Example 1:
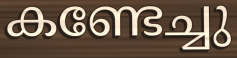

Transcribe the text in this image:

കണ്ടേച്ചു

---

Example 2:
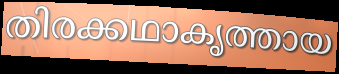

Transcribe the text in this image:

തിരക്കഥാകൃത്തായ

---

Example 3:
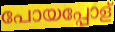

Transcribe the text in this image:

പോയപ്പോള്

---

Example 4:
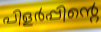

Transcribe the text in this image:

പിളർപ്പിന്റെ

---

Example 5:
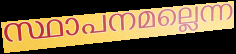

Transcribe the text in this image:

സ്ഥാപനമല്ലെന്ന